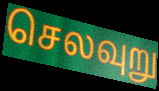
செலவுறு